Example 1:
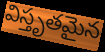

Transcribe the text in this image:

విస్తృతమైన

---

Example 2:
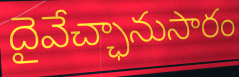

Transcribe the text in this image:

దైవేచ్ఛానుసారం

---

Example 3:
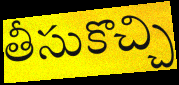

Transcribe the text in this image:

తీసుకొచ్చి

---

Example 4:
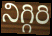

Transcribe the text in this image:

నిగ్గిరి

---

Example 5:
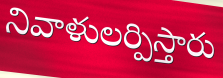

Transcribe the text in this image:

నివాళులర్పిస్తారు